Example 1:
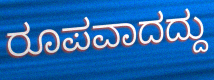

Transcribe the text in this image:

ರೂಪವಾದದ್ದು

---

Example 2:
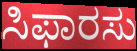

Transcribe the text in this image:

ಸಿಫಾರಸು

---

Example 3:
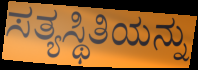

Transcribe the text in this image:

ಸತ್ಯಸ್ಥಿತಿಯನ್ನು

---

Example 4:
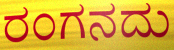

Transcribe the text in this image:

ರಂಗನದು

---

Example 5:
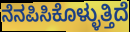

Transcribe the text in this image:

ನೆನಪಿಸಿಕೊಳ್ಳುತ್ತಿದೆ